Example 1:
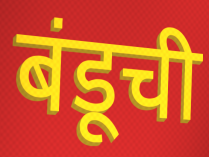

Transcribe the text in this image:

बंडूची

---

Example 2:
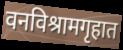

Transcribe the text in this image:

वनविश्रामगृहात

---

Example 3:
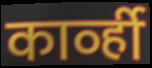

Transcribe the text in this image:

कार्व्ही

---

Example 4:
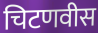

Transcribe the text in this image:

चिटणवीस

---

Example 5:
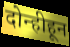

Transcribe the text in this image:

दोन्हीहून